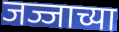
जज्जाच्या